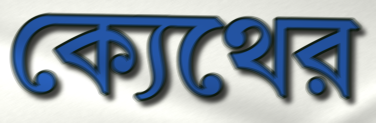
ক্যেথের